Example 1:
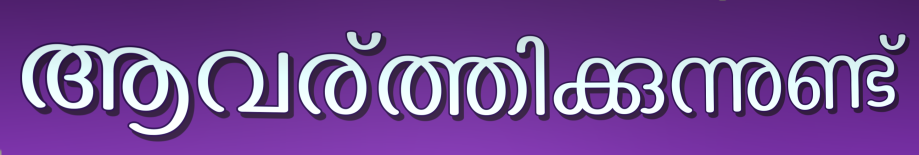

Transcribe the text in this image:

ആവര്ത്തിക്കുന്നുണ്ട്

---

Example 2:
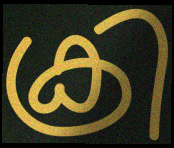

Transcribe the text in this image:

ക്രി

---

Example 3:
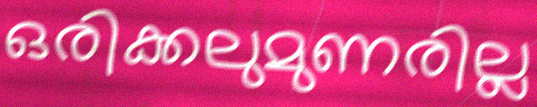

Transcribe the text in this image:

ഒരിക്കലുമുണരില്ല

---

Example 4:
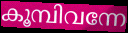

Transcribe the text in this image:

കൂമ്പിവന്നേ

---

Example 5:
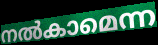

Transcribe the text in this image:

നൽകാമെന്ന